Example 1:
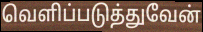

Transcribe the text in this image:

வெளிப்படுத்துவேன்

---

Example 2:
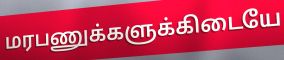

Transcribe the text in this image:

மரபணுக்களுக்கிடையே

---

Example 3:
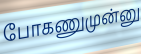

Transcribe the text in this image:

போகணுமுன்னு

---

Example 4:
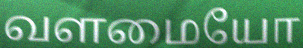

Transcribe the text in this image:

வளமையோ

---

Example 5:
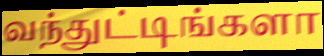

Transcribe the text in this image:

வந்துட்டிங்களா